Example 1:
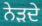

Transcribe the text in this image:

ਨੇੜਦੇ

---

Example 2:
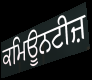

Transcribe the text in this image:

ਕਮਿਊਨਟੀਜ਼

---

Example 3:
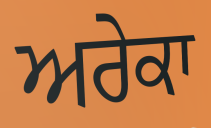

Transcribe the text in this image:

ਅਰੇਕਾ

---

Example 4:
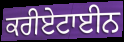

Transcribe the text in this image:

ਕਰੀਏਟਾਈਨ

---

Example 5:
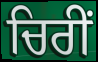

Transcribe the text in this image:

ਚਿਰੀਂ